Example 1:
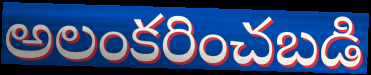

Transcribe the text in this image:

అలంకరించబడి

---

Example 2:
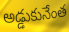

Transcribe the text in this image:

అడ్డుకునేంత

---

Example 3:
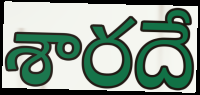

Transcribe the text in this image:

శారదే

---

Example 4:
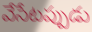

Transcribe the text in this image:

వేసేటప్పుడు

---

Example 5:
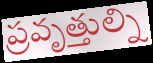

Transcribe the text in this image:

ప్రవృత్తుల్ని